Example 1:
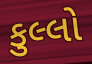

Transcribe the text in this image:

કુલ્લો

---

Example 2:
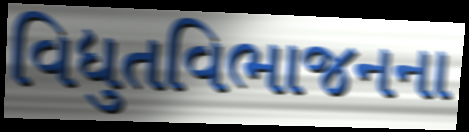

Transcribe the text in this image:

વિદ્યુતવિભાજનના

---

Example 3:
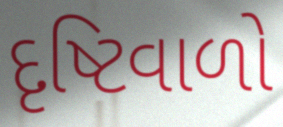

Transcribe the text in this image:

દૃષ્ટિવાળો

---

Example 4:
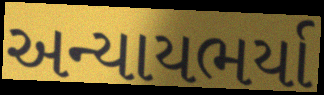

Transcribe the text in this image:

અન્યાયભર્યા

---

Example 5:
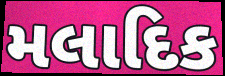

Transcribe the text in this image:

મલાદિક